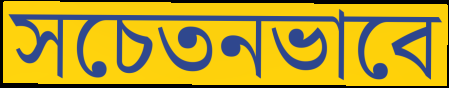
সচেতনভাবে